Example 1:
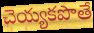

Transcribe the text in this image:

చెయ్యకపొతే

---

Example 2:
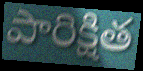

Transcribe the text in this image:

పారిక్షిత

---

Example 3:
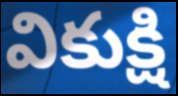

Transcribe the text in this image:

వికుక్షి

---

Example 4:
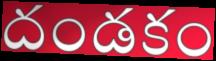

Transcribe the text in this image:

దండకం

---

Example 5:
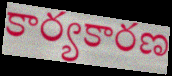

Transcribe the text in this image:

కార్యకారణ